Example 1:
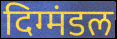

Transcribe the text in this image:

दिग्मंडल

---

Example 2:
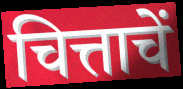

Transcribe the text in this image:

चित्ताचें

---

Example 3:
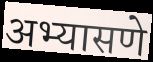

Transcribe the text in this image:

अभ्यासणे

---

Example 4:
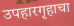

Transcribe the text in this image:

उपहारगृहाचा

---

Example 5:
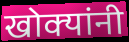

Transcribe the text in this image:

खोक्यांनी